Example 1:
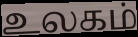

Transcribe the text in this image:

உலகம்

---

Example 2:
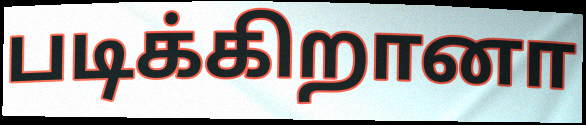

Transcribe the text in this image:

படிக்கிறானா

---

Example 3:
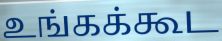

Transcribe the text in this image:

உங்கக்கூட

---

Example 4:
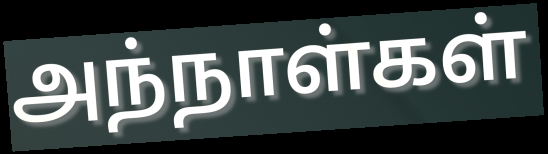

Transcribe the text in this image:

அந்நாள்கள்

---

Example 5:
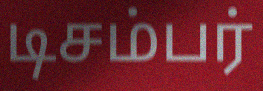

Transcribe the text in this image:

டிசம்பர்